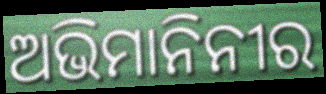
ଅଭିମାନିନୀର